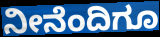
ನೀನೆಂದಿಗೂ